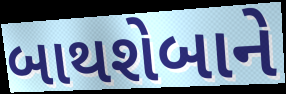
બાથશેબાને